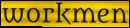
workmen